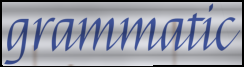
grammatic